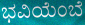
ಭವಿಯೆಂಬೆ